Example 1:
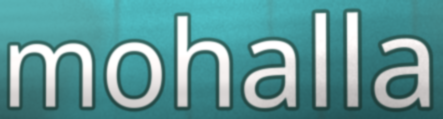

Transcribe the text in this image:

mohalla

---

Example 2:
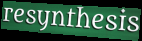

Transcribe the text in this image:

resynthesis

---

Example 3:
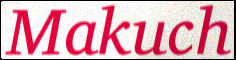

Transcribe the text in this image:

Makuch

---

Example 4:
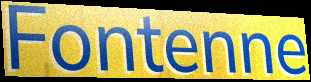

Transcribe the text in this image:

Fontenne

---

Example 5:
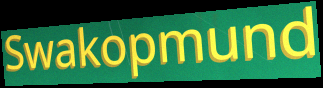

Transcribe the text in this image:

Swakopmund